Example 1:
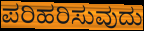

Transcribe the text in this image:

ಪರಿಹರಿಸುವುದು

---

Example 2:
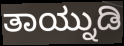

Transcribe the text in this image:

ತಾಯ್ನುಡಿ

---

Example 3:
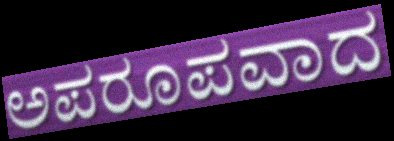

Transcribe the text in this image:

ಅಪರೂಪವಾದ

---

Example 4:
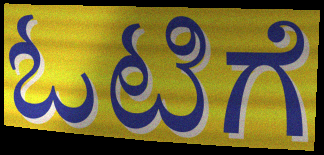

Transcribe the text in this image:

ಓಟಿಗೆ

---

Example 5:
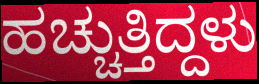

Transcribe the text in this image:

ಹಚ್ಚುತ್ತಿದ್ದಳು